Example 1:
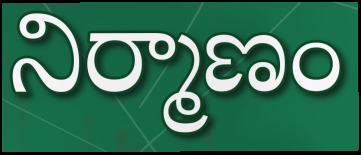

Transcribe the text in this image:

నిర్మాణం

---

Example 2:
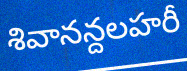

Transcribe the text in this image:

శివానన్దలహరీ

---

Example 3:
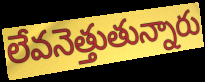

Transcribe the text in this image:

లేవనెత్తుతున్నారు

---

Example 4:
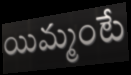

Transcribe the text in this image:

యిమ్మంటే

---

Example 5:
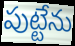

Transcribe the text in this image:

పుట్టేను